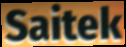
Saitek